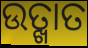
ଉତ୍ଖାତ